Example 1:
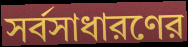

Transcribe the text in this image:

সর্বসাধারণের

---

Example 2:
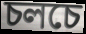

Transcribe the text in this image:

চলচে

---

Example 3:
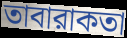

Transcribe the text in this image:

তাবারাকতা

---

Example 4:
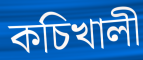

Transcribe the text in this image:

কচিখালী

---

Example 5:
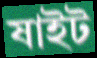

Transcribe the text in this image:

ষাইট